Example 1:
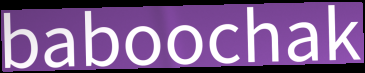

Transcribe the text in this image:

baboochak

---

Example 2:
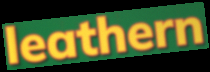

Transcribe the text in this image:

leathern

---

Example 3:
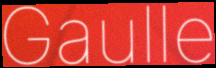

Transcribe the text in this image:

Gaulle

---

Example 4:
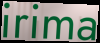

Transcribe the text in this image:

irima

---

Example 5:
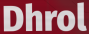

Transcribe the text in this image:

Dhrol